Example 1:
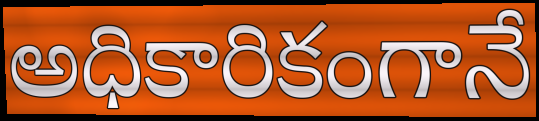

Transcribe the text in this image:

అధికారికంగానే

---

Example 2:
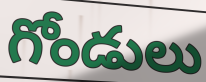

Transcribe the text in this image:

గోండులు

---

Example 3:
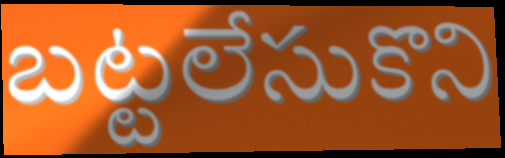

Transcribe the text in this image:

బట్టలేసుకొని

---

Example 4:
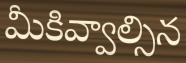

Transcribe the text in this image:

మీకివ్వాల్సిన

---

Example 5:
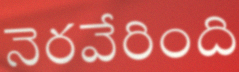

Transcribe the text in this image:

నెరవేరింది